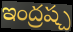
ఇంద్రష్చ